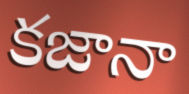
కజానా